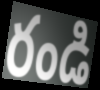
రండి